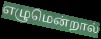
எழுமென்றால்